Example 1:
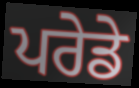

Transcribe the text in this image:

ਪਰੇਡੇ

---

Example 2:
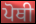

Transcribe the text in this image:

ਪੋਥੀ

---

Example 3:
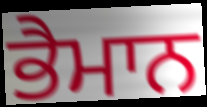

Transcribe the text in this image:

ਭੈਮਾਨ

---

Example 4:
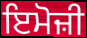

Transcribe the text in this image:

ਇਮੋਜ਼ੀ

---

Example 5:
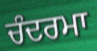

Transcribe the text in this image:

ਚੰਦਰਮਾ